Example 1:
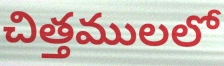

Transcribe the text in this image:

చిత్తములలో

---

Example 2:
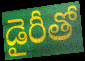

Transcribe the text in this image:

డైరీతో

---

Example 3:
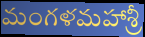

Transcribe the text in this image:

మంగళమహాశ్రీ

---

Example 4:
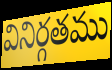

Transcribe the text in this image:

వినిర్గతము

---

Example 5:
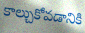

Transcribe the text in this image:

కాల్చుకోవడానికి